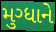
મુગ્ધાને